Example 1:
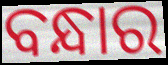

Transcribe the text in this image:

ବନ୍ଧାର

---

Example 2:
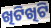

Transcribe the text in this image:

ଖିଟିଖିଟି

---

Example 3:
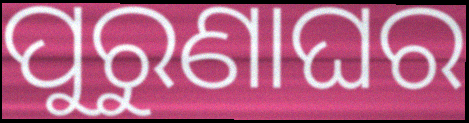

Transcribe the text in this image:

ପୁରୁଣାଘର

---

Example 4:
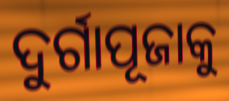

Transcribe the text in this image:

ଦୁର୍ଗାପୂଜାକୁ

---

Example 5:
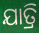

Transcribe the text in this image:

ଯାତ୍ରି